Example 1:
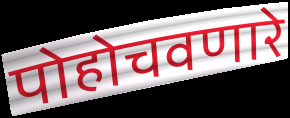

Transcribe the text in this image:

पोहोचवणारे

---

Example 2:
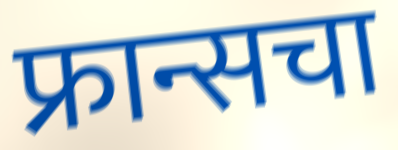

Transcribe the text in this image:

फ्रान्सचा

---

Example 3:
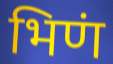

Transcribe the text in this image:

भिणं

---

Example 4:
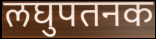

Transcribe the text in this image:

लघुपतनक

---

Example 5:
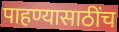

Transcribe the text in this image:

पाहण्यासाठींच